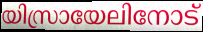
യിസ്രായേലിനോട്